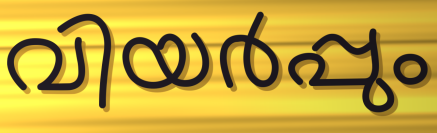
വിയർപ്പും